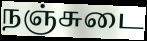
நஞ்சுடை